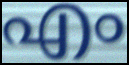
എം